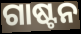
ଗାଷ୍ଟନ